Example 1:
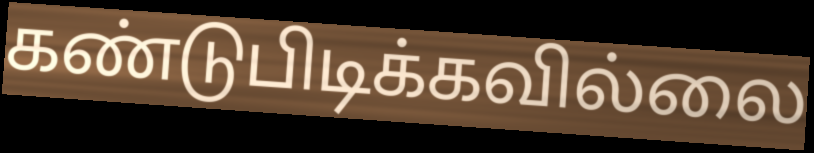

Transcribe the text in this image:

கண்டுபிடிக்கவில்லை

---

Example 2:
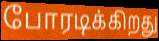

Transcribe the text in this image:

போரடிக்கிறது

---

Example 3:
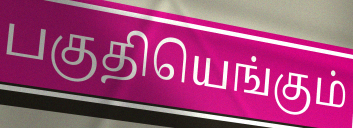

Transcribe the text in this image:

பகுதியெங்கும்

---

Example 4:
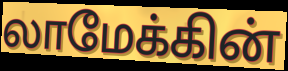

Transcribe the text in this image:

லாமேக்கின்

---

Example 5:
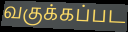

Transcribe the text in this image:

வகுக்கப்பட